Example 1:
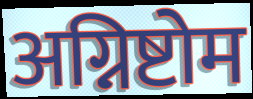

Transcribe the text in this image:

अग्निष्टोम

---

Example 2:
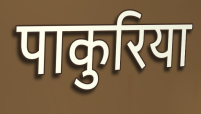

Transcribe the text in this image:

पाकुरिया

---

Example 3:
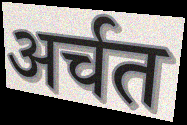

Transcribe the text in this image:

अर्चत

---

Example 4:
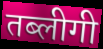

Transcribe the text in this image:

तब्लीगी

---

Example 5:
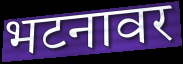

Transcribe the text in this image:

भटनावर